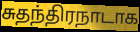
சுதந்திரநாடாக